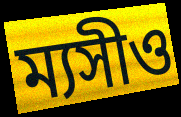
ম্যসীও